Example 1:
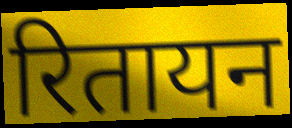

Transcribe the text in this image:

रितायन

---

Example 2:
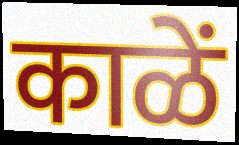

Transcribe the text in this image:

काळें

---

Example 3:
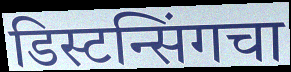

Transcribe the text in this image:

डिस्टन्सिंगचा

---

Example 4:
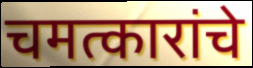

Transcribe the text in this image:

चमत्कारांचे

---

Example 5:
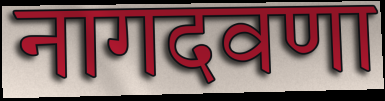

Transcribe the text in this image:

नागदवणा